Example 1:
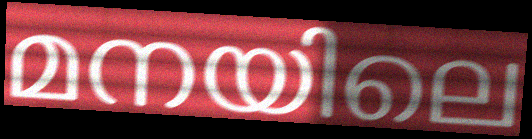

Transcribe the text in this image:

മനയിലെ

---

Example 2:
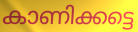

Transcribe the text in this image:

കാണിക്കട്ടെ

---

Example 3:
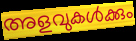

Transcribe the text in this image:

അളവുകൾക്കും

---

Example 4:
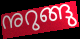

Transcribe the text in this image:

നുറുങ്ങു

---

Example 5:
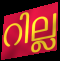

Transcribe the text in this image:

റില്ല